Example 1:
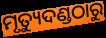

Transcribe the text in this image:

ମୃତ୍ୟୁଦଣ୍ଡଠାରୁ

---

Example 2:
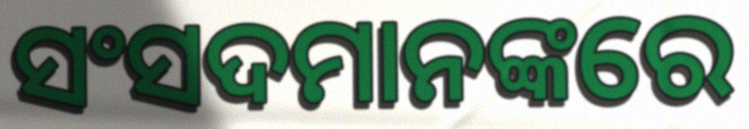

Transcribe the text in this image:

ସଂସଦମାନଙ୍କରେ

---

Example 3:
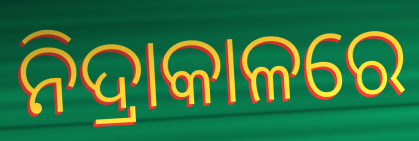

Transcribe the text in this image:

ନିଦ୍ରାକାଳରେ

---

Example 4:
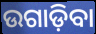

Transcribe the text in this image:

ଉଗାଡ଼ିବା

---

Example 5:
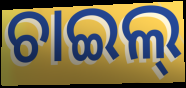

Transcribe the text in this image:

ଚାଇଲ୍